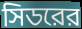
সিডরের